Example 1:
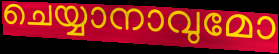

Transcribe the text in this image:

ചെയ്യാനാവുമോ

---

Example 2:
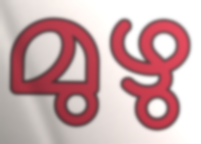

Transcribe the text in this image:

മുഴു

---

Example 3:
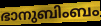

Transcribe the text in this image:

ഭാനുബിംബം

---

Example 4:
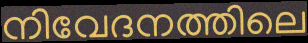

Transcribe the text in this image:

നിവേദനത്തിലെ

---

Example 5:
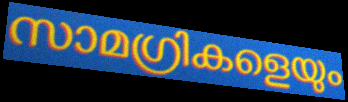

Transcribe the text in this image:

സാമഗ്രികളെയും